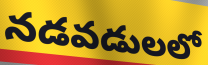
నడవడులలో